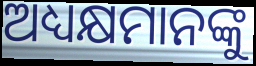
ଅଧ୍ୟକ୍ଷମାନଙ୍କୁ